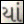
યાં